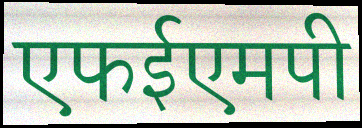
एफईएमपी